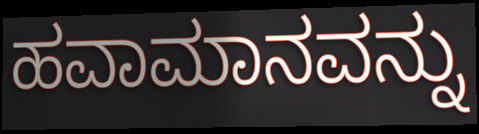
ಹವಾಮಾನವನ್ನು